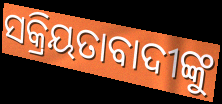
ସକ୍ରିୟତାବାଦୀଙ୍କୁ